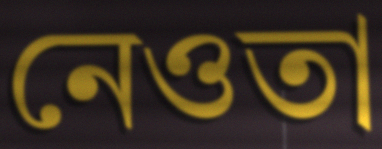
নেওতা